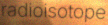
radioisotope